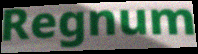
Regnum